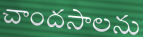
చాందసాలను